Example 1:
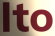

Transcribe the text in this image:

Ito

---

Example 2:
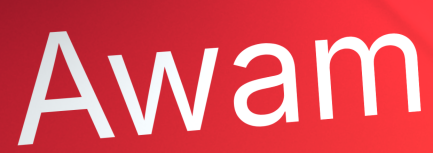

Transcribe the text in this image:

Awam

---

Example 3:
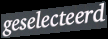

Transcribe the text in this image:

geselecteerd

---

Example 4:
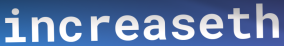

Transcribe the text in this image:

increaseth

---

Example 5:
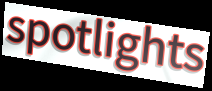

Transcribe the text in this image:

spotlights